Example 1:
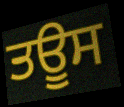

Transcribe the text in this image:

ਤਊਸ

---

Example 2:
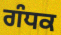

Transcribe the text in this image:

ਗੰਧਕ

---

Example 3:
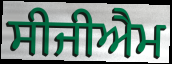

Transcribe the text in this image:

ਸੀਜੀਐਮ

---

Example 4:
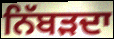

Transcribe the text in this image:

ਨਿੱਬੜਦਾ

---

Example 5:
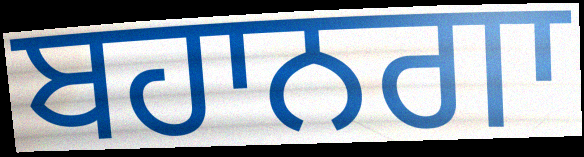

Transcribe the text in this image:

ਬਹਾਨਗਾ